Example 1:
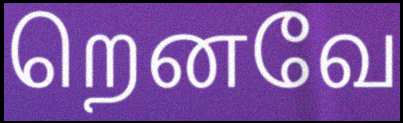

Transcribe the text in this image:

றெனவே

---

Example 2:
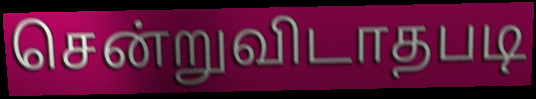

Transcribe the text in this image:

சென்றுவிடாதபடி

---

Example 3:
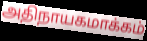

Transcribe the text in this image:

அதிநாயகமாக்கம்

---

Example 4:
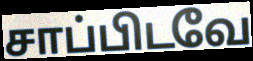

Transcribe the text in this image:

சாப்பிடவே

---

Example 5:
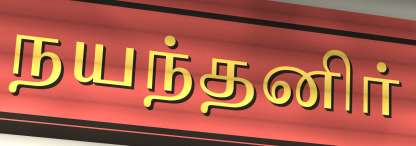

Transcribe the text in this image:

நயந்தனிர்